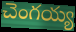
చెంగయ్య